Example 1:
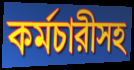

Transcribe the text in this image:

কর্মচারীসহ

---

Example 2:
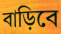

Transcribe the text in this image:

বাড়িবে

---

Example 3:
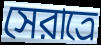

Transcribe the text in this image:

সেরাত্রে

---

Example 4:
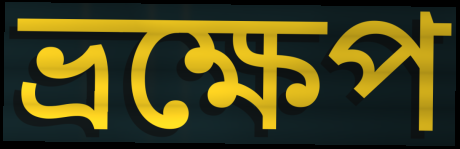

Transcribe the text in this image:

ভ্রক্ষেপ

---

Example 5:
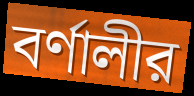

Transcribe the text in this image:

বর্ণালীর